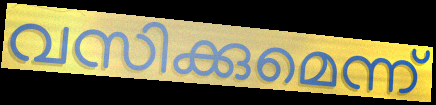
വസിക്കുമെന്ന്